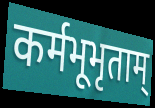
कर्मभूभृताम्